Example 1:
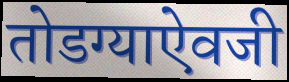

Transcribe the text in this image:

तोडग्याऐवजी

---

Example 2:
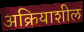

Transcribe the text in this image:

अक्रियाशील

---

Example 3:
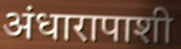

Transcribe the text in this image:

अंधारापाशी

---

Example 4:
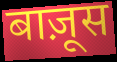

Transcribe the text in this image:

बाज़ूस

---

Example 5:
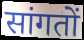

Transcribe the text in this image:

सांगतों